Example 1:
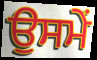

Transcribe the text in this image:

ਉਸਮੇਂ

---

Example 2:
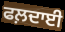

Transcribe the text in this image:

ਫਲ਼ਦਾਈ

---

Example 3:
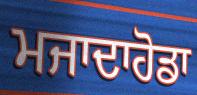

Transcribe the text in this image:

ਮਜਾਦਾਹੋਡਾ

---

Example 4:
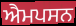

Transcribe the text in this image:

ਐਮਪਸਨ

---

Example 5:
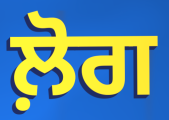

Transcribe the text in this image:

ਲ਼ੋਗ